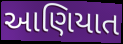
આણિયાત